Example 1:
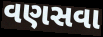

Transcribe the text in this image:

વણસવા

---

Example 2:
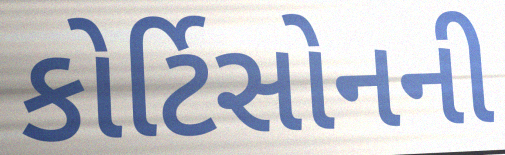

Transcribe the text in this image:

કોર્ટિસોનની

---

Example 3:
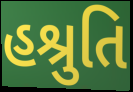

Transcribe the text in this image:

હશ્રુતિ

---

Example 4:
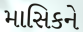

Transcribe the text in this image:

માસિકને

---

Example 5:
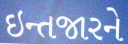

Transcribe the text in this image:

ઇન્તજારને